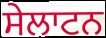
ਸੇਲਾਟਨ